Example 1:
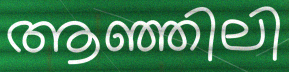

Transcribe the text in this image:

ആഞ്ഞിലി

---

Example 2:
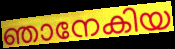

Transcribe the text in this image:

ഞാനേകിയ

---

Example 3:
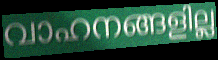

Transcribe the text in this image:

വാഹനങ്ങളില്ല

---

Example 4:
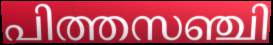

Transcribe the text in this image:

പിത്തസഞ്ചി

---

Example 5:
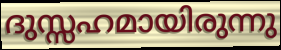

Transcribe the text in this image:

ദുസ്സഹമായിരുന്നു